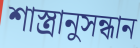
শাস্ত্রানুসন্ধান